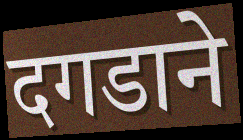
दगडाने